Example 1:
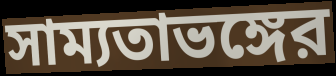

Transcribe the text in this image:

সাম্যতাভঙ্গের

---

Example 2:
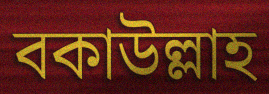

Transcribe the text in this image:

বকাউল্লাহ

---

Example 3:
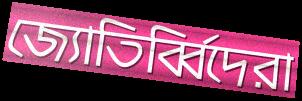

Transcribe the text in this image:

জ্যোতির্ব্বিদেরা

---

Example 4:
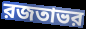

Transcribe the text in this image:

রজতাভর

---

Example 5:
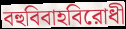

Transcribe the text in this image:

বহুবিবাহবিরোধী